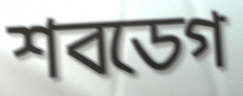
শবডেগ